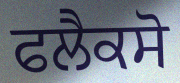
ਫਲੈਕਸੋ